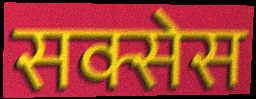
सक्सेस